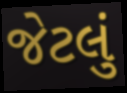
જેટલું